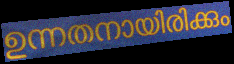
ഉന്നതനായിരിക്കും